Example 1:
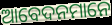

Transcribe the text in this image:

ଆବେଦନମାନେ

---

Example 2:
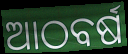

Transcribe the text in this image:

ଆଠବର୍ଷ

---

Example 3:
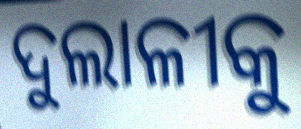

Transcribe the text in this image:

ଦୁଲାଳୀକୁ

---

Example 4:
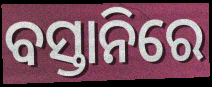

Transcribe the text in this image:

ବସ୍ତାନିରେ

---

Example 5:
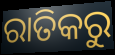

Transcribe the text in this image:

ରାତିକରୁ